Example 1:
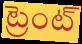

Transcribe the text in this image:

ట్రెంట్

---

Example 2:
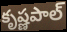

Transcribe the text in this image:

కృష్ణపాల్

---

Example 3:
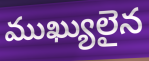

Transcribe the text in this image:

ముఖ్యులైన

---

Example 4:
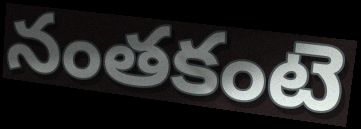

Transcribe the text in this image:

నంతకంటె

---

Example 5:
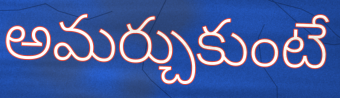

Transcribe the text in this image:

అమర్చుకుంటే